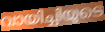
വായിച്ചിയുടെ